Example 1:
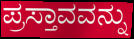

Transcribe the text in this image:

ಪ್ರಸ್ತಾವವನ್ನು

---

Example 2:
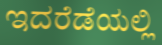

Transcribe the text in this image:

ಇದರೆಡೆಯಲ್ಲಿ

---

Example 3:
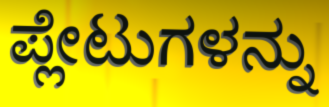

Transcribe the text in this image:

ಪ್ಲೇಟುಗಳನ್ನು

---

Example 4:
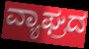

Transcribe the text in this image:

ವ್ಯಾಘ್ರದ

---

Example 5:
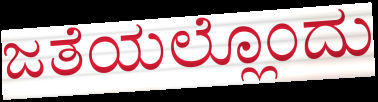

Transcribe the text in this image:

ಜತೆಯಲ್ಲೊಂದು